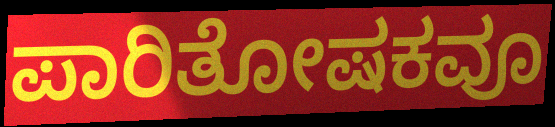
ಪಾರಿತೋಷಕವೂ